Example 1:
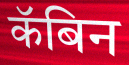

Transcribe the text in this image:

कॅबिन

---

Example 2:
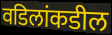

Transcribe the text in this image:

वडिलांकडील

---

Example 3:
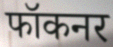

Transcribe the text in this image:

फॉकनर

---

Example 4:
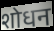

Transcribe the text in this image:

शोधन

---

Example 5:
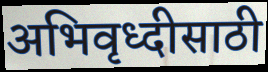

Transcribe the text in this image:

अभिवृध्दीसाठी